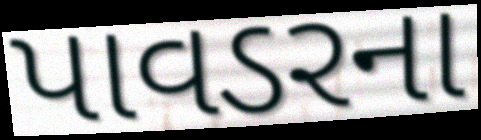
પાવડરના